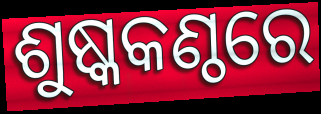
ଶୁଷ୍କକଣ୍ଠରେ